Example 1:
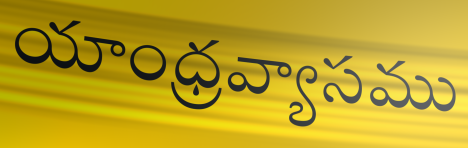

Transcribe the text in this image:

యాంధ్రవ్యాసము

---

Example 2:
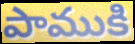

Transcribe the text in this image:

పాముకి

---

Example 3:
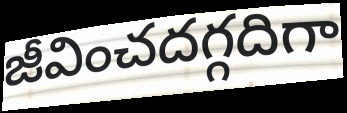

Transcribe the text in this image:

జీవించదగ్గదిగా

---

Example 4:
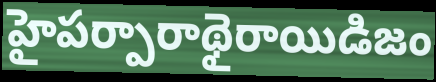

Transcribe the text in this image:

హైపర్పారాథైరాయిడిజం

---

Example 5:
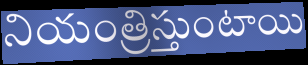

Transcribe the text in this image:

నియంత్రిస్తుంటాయి